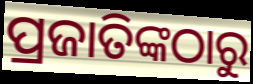
ପ୍ରଜାତିଙ୍କଠାରୁ